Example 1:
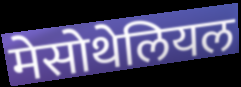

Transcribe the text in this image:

मेसोथेलियल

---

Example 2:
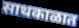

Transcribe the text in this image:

साथकाळात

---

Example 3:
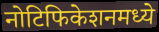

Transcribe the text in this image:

नोटिफिकेशनमध्ये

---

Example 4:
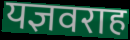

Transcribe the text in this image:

यज्ञवराह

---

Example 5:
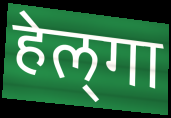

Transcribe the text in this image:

हेल्गा